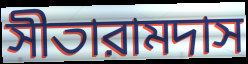
সীতারামদাস